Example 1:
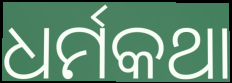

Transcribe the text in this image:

ଧର୍ମକଥା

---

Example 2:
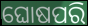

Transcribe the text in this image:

ଘୋଷପରି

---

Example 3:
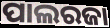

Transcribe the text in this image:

ପାଲରଜା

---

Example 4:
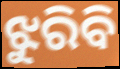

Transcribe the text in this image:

ଝୁରିବି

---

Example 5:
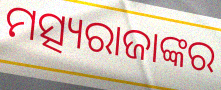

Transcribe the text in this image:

ମତ୍ସ୍ୟରାଜାଙ୍କର